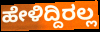
ಹೇಳಿದ್ದಿರಲ್ಲ